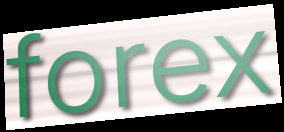
forex